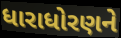
ધારાધોરણને